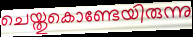
ചെയ്തുകൊണ്ടേയിരുന്നു